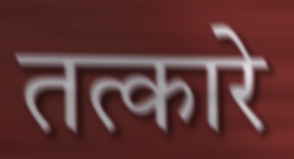
तत्कारे